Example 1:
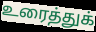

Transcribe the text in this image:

உரைத்துக்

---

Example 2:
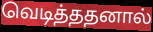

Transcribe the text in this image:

வெடித்ததனால்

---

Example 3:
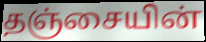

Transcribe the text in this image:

தஞ்சையின்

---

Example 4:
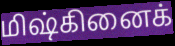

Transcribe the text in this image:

மிஷ்கினைக்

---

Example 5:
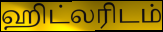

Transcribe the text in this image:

ஹிட்லரிடம்